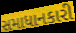
સમાધાનકારી